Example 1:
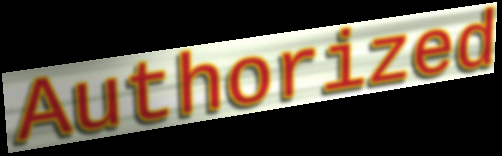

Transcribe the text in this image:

Authorized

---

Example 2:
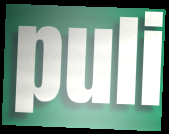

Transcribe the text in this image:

puli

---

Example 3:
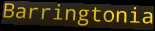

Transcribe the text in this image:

Barringtonia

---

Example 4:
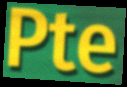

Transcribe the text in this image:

Pte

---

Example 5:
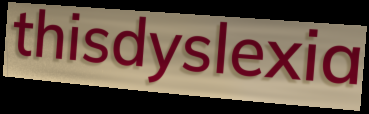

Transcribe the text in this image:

thisdyslexia